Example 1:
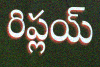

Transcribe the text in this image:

రిప్లయ్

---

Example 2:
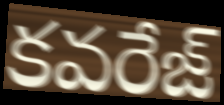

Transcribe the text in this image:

కవరేజ్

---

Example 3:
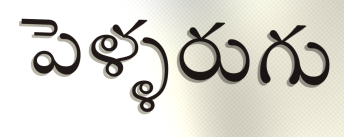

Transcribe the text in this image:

పెళ్ళరుగు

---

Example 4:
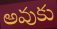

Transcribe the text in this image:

అవుకు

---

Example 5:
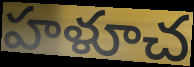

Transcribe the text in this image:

హళూచ